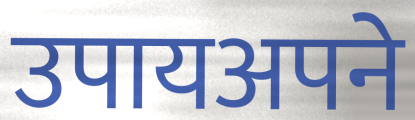
उपायअपने